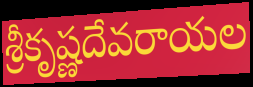
శ్రీకృష్ణదేవరాయల